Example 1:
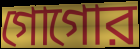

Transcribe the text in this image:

গোগোর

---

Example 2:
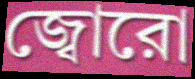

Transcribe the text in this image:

জ্বোরো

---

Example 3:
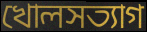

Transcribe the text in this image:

খোলসত্যাগ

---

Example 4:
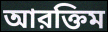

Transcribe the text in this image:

আরক্তিম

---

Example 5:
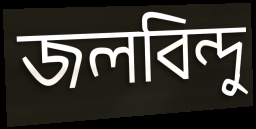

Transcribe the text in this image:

জলবিন্দু